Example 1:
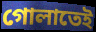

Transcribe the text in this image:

গোলাতেই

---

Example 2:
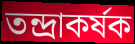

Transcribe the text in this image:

তন্দ্রাকর্ষক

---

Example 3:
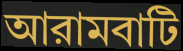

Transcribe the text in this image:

আরামবাটি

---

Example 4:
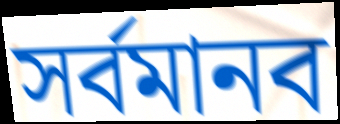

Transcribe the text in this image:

সর্বমানব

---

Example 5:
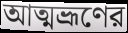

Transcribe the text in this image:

আত্মভ্রূণের